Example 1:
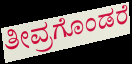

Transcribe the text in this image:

ತೀವ್ರಗೊಂಡರೆ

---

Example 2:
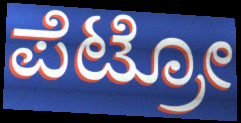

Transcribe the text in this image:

ಪೆಟ್ರೋ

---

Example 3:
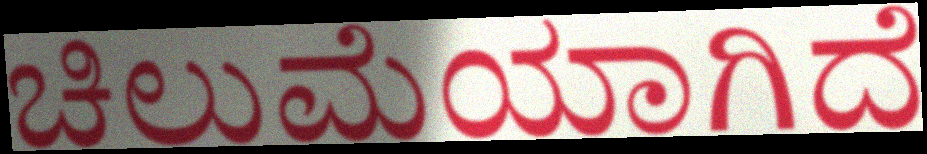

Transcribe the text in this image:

ಚಿಲುಮೆಯಾಗಿದೆ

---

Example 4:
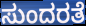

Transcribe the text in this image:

ಸುಂದರತೆ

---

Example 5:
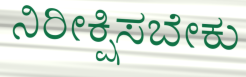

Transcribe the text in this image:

ನಿರೀಕ್ಷಿಸಬೇಕು